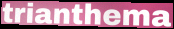
trianthema